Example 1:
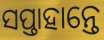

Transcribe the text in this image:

ସପ୍ତାହାନ୍ତେ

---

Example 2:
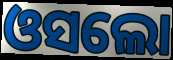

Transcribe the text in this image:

ଓସଲୋ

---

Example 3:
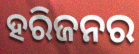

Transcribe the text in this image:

ହରିଜନର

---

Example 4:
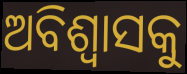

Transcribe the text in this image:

ଅବିଶ୍ୱାସକୁ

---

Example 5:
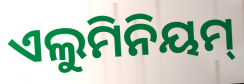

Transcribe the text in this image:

ଏଲୁମିନିୟମ୍